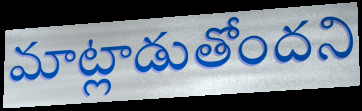
మాట్లాడుతోందని